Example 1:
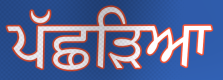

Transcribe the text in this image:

ਪੱਛੜਿਆ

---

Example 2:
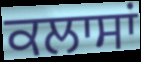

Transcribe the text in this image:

ਕਲਾਸਾਂ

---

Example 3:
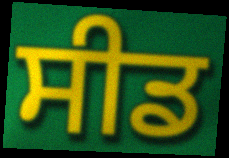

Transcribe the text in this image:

ਸੀਡ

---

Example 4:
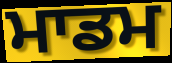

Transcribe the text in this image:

ਮਾਡਮ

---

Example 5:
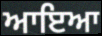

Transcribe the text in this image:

ਆਇਆ